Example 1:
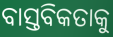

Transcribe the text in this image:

ବାସ୍ତବିକତାକୁ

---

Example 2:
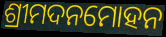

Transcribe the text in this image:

ଶ୍ରୀମଦନମୋହନ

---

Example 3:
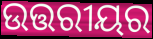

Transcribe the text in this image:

ଉତ୍ତରୀୟର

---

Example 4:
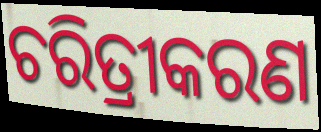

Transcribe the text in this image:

ଚରିତ୍ରୀକରଣ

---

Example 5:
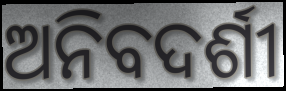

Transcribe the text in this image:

ଅନିବଦର୍ଶୀ